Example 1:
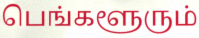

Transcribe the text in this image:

பெங்களூரும்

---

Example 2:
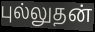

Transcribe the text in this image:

புல்லுதன்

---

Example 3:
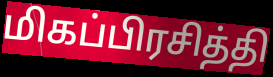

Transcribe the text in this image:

மிகப்பிரசித்தி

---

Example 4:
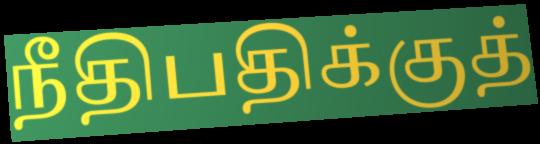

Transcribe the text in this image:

நீதிபதிக்குத்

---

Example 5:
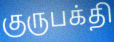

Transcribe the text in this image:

குருபக்தி